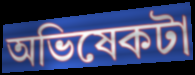
অভিষেকটা